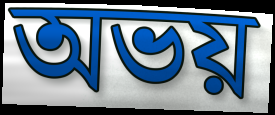
অভয়